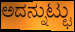
ಅದನ್ನುಟ್ಟು